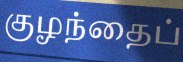
குழந்தைப்